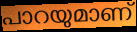
പാറയുമാണ്